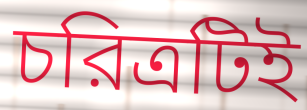
চরিত্রটিই